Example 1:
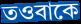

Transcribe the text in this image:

তওবাকে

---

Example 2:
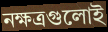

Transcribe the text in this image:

নক্ষত্রগুলোই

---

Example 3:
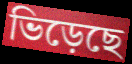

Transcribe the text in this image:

ভিড়েছে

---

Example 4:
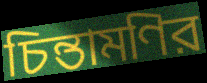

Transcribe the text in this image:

চিন্তামণির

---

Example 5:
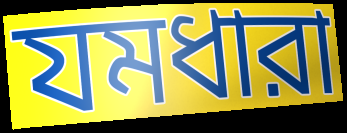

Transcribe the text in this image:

যমধারা